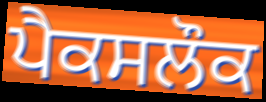
ਪੈਕਸਲੌਕ